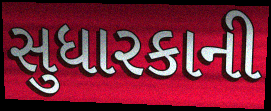
સુધારકાની